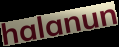
halanun